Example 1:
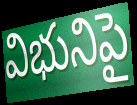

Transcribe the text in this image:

విభునిపై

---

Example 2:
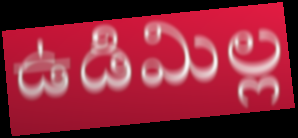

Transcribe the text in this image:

ఉడిమిల్ల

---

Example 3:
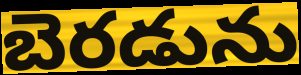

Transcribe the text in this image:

బెరడును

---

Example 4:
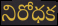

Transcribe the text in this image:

నిరోధక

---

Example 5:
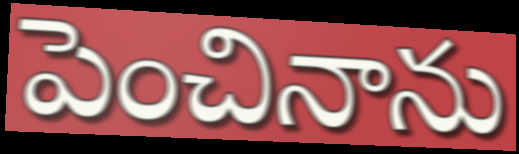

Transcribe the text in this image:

పెంచినాను